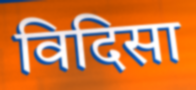
विदिसा